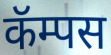
कॅम्पस